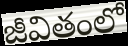
జీవితంలో